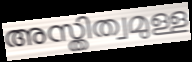
അസ്തിത്വമുള്ള